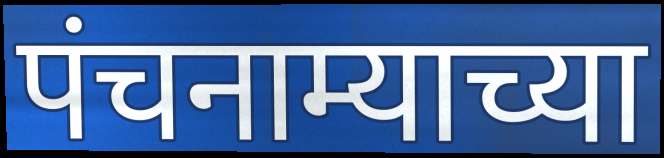
पंचनाम्याच्या